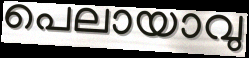
പെലായാവു